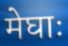
मेघाः